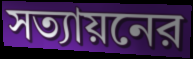
সত্যায়নের